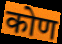
कोण